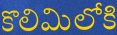
కొలిమిలోకి